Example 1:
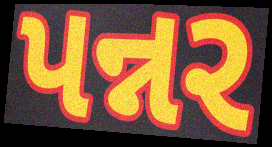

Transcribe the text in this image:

પન્નર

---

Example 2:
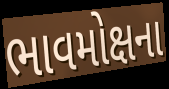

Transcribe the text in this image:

ભાવમોક્ષના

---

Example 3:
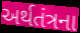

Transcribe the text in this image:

અર્થતંત્રના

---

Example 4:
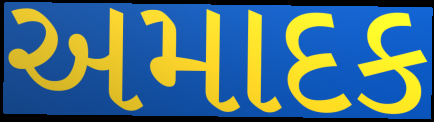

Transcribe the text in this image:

અમાદક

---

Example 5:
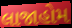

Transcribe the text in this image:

લાજાહોમ